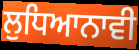
ਲੁਧਿਆਨਾਵੀ